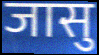
जासु